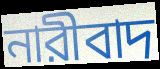
নারীবাদ